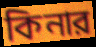
কিনার